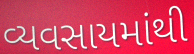
વ્યવસાયમાંથી